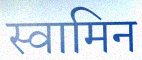
स्वामिन